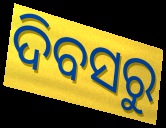
ଦିବସରୁ